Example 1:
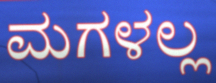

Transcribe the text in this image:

ಮಗಳಲ್ಲ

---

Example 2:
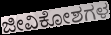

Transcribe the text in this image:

ಜೀವಿಕೋಶಗಳ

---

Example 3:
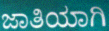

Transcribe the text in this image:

ಜಾತಿಯಾಗಿ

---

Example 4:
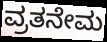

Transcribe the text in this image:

ವ್ರತನೇಮ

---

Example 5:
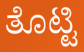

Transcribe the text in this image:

ತೊಟ್ಟಿ